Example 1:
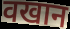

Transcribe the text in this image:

वखान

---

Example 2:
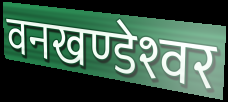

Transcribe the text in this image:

वनखण्डेश्वर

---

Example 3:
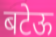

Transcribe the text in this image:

बटेऊ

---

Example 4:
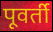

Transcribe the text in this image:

पूवर्ती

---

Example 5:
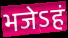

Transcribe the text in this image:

भजेऽहं